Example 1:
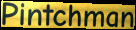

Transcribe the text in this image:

Pintchman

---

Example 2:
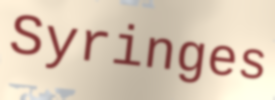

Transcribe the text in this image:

Syringes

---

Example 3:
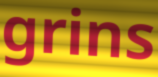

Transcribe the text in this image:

grins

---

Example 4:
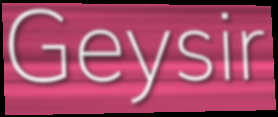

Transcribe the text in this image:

Geysir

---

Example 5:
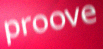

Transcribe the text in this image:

proove